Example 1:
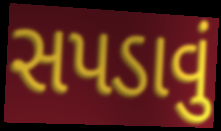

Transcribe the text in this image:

સપડાવું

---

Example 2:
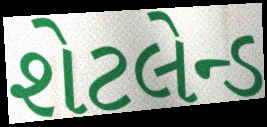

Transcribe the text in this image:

શેટલેન્ડ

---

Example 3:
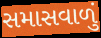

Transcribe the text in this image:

સમાસવાળું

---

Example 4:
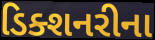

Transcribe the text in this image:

ડિક્શનરીના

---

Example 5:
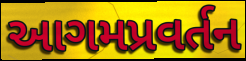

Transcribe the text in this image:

આગમપ્રવર્તન